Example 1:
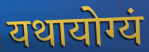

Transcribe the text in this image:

यथायोग्यं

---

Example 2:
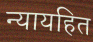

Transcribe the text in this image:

न्यायहित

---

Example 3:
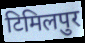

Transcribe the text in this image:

टिमिलपुर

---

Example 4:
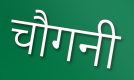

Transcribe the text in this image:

चौगनी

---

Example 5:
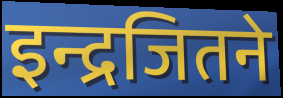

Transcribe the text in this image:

इन्द्रजितने